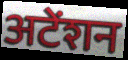
अटेंशन